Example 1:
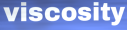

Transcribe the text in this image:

viscosity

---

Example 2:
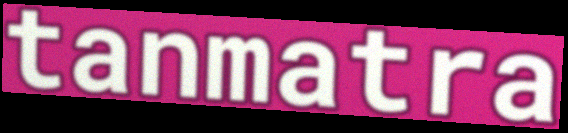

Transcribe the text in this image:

tanmatra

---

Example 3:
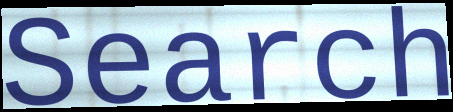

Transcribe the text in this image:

Search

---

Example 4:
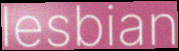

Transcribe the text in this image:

lesbian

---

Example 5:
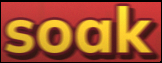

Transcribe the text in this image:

soak